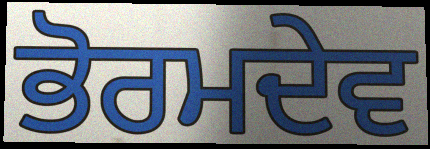
ਭੋਰਮਦੇਵ